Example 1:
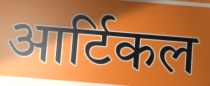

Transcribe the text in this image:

आर्टिकल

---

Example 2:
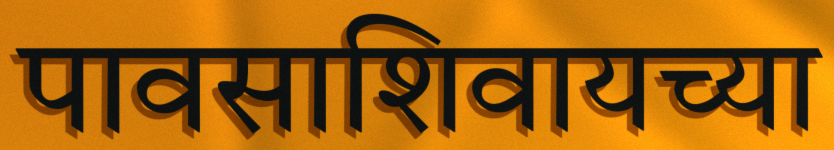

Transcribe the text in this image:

पावसाशिवायच्या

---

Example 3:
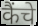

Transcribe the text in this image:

कैंचे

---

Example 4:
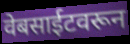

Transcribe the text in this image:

वेबसाईटवरून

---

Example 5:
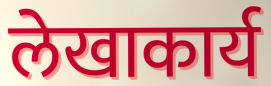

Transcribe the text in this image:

लेखाकार्य